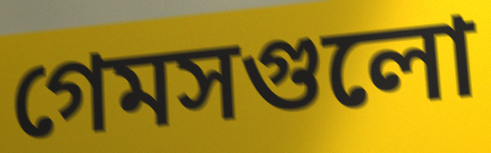
গেমসগুলো